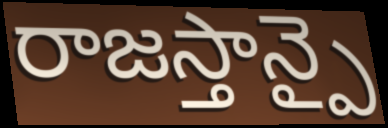
రాజస్తాన్పై